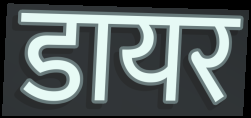
डायर